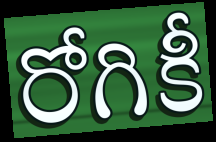
రోగికీ